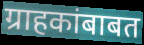
ग्राहकांबाबत